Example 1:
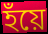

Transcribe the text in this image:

হঁয়ে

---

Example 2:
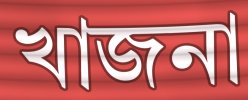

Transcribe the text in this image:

খাজনা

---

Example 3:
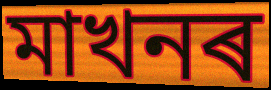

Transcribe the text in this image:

মাখনৰ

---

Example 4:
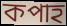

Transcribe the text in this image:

কপাহ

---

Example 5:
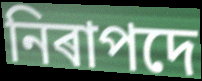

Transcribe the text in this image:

নিৰাপদে